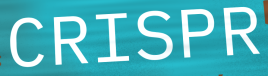
CRISPR